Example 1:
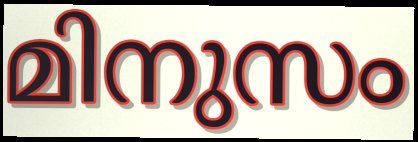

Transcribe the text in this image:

മിനുസം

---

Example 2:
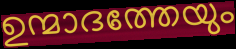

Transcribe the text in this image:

ഉന്മാദത്തേയും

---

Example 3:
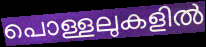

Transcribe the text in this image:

പൊള്ളലുകളിൽ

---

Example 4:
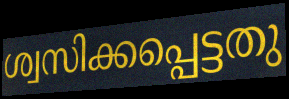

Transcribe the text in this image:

ശ്വസിക്കപ്പെട്ടതു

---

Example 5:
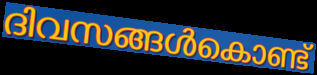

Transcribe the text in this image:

ദിവസങ്ങൾകൊണ്ട്